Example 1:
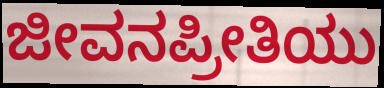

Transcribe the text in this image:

ಜೀವನಪ್ರೀತಿಯು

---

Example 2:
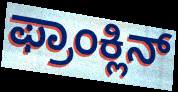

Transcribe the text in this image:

ಫ್ರಾಂಕ್ಲಿನ್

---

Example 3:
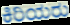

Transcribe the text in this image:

ಕಿರಿಯರು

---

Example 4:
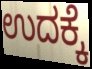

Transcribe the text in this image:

ಉದಕ್ಕೆ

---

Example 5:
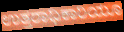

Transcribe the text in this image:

ಉತ್ತರಾಧಿಕಾರಿಯೂ